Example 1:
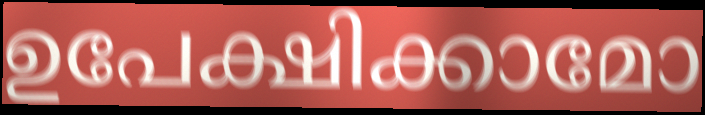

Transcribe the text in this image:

ഉപേക്ഷിക്കാമോ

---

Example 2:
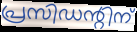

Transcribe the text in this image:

പ്രസിഡന്റിന്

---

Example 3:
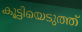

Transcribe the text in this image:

കൂട്ടിയെടുത്ത്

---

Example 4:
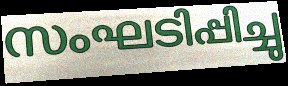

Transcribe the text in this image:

സംഘടിപ്പിച്ചു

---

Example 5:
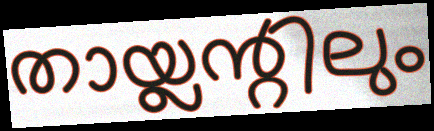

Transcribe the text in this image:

തായ്ലന്റിലും